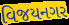
વિજયનગર